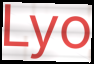
Lyo